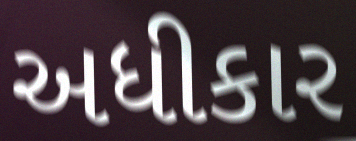
અધીકાર